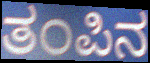
ತಂಪಿನ